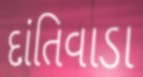
દાંતિવાડા